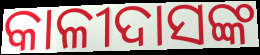
କାଳୀଦାସଙ୍କ